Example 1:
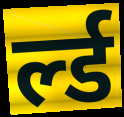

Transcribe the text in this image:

र्ल्ड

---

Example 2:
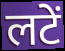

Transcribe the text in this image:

लटें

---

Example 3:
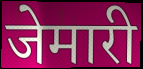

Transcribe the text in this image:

जेमारी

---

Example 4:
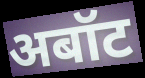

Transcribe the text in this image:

अबॉट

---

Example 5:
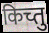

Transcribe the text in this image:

किच्तु